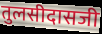
तुलसीदासजी